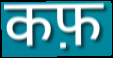
कफ़